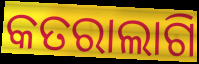
କତରାଲାଗି